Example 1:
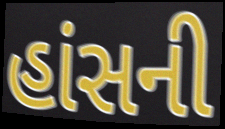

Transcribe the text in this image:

હાંસની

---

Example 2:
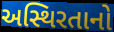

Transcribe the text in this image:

અસ્થિરતાનો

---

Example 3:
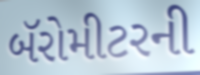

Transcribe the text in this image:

બૅરોમીટરની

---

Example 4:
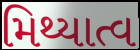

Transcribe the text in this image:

મિથ્યાત્વ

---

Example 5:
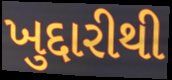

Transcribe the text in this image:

ખુદ્દારીથી